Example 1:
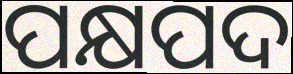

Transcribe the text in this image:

ପକ୍ଷପଦ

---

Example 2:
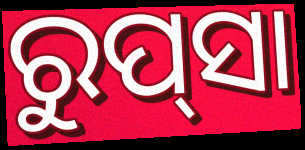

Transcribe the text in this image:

ରୁପ୍‍ସା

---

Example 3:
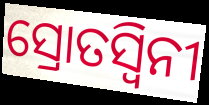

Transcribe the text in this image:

ସ୍ରୋତସ୍ୱିନୀ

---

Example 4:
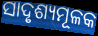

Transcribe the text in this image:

ସାଦୃଶ୍ୟମୂଳକ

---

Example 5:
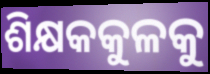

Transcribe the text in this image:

ଶିକ୍ଷକକୁଳକୁ